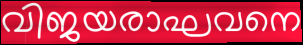
വിജയരാഘവനെ